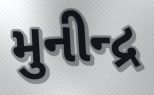
મુનીન્દ્ર